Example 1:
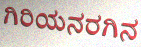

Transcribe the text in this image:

ಗಿರಿಯನರಗಿನ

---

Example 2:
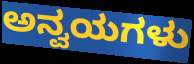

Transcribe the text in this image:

ಅನ್ವಯಗಳು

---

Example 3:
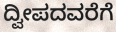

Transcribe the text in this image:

ದ್ವೀಪದವರೆಗೆ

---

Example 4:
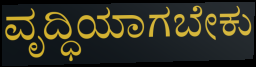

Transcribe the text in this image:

ವೃದ್ಧಿಯಾಗಬೇಕು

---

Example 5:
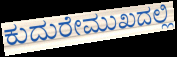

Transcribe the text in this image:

ಕುದುರೇಮುಖದಲ್ಲಿ